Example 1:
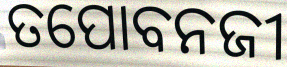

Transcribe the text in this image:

ତପୋବନଜୀ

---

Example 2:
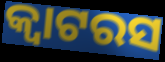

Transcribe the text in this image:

କ୍ୱାଟରସ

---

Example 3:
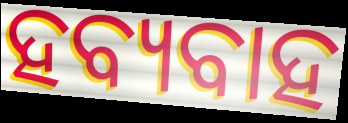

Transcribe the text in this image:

ହବ୍ୟବାହ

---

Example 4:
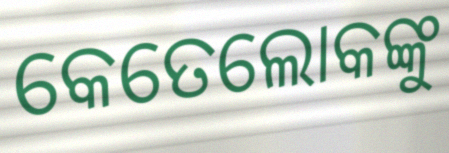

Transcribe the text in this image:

କେତେଲୋକଙ୍କୁ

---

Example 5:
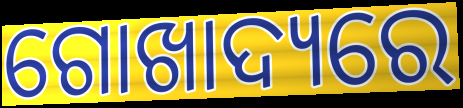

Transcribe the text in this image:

ଗୋଖାଦ୍ୟରେ